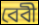
বেবী